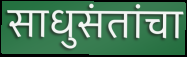
साधुसंतांचा